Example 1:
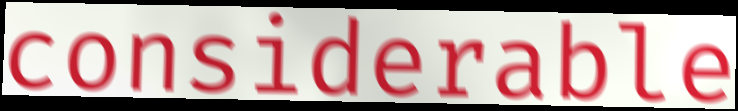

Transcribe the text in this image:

considerable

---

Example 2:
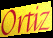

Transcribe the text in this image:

Ortiz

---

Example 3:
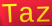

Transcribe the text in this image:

Taz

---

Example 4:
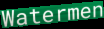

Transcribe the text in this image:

Watermen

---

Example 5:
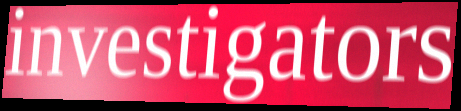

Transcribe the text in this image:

investigators